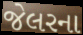
જેલરના